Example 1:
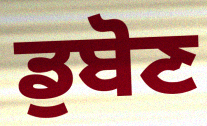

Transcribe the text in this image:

ਡੁਬੋਣ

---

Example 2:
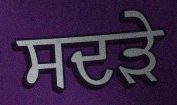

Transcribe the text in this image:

ਸਦੜੇ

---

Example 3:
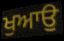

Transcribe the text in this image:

ਖੁਆਉ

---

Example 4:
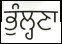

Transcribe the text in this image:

ਭੁੰਲ੍ਹਣਾ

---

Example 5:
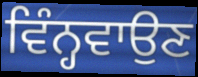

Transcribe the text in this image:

ਵਿੰਨ੍ਹਵਾਉਣ